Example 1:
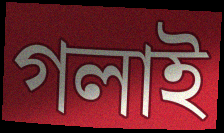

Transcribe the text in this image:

গলাই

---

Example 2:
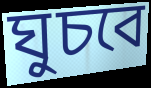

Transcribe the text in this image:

ঘুচবে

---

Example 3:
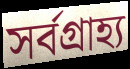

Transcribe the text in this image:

সর্বগ্রাহ্য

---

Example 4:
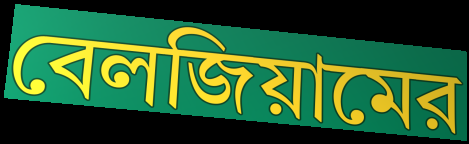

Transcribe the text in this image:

বেলজিয়ামের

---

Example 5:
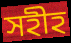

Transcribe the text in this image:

সহীহ